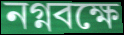
নগ্নবক্ষে